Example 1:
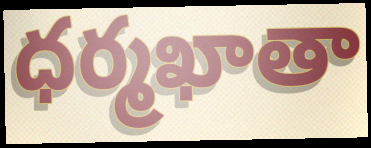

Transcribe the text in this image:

ధర్మఖాతా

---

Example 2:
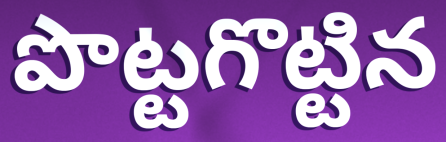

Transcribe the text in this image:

పొట్టగొట్టిన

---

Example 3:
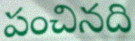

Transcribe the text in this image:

పంచినది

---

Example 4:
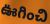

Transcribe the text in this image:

ఊగించి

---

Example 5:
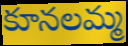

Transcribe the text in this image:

కూనలమ్మ